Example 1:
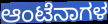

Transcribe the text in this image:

ಆಂಟೆನಾಗಳ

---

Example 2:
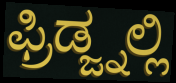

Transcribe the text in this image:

ಫ್ರಿಡ್ಜ್ನಲ್ಲಿ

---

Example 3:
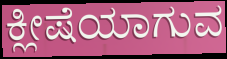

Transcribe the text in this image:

ಕ್ಲೀಷೆಯಾಗುವ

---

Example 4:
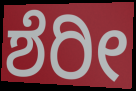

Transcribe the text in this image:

ಶೆರೀ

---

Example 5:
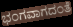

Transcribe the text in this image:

ಭಂಗವಾಗದಂತೆ